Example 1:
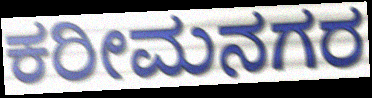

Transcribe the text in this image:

ಕರೀಮನಗರ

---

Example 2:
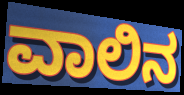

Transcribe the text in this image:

ವಾಲಿನ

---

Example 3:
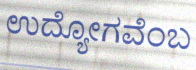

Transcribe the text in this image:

ಉದ್ಯೋಗವೆಂಬ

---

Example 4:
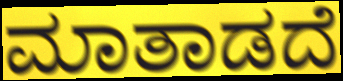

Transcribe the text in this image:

ಮಾತಾಡದೆ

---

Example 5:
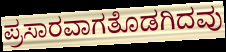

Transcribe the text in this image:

ಪ್ರಸಾರವಾಗತೊಡಗಿದವು